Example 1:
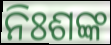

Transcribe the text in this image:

ନିଃଶଙ୍କ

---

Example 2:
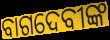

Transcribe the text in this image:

ବାଗଦେବୀଙ୍କ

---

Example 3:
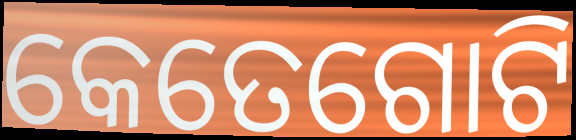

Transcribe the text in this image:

କେତେଗୋଟି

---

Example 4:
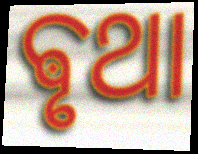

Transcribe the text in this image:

ଵୃଥା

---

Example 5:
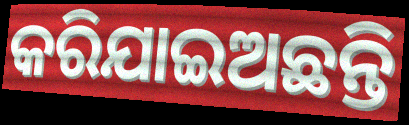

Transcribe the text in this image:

କରିଯାଇଅଛନ୍ତି